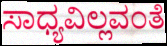
ಸಾಧ್ಯವಿಲ್ಲವಂತೆ